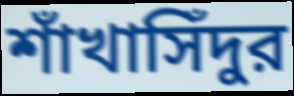
শাঁখাসিঁদুর